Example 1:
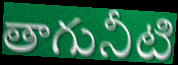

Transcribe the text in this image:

తాగునీటి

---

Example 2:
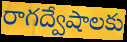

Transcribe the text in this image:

రాగద్వేషాలకు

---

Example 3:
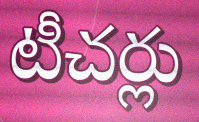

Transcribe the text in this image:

టీచర్లు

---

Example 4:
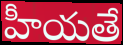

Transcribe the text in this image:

హీయతే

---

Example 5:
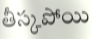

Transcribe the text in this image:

తీస్కపోయి